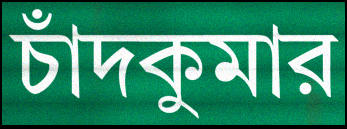
চাঁদকুমার